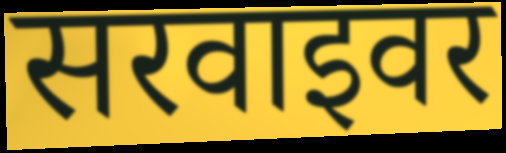
सरवाइवर